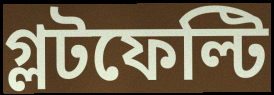
গ্লটফেল্টি